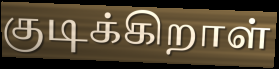
குடிக்கிறாள்